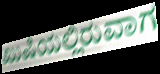
ಖುಷಿಯಲ್ಲಿರುವಾಗ